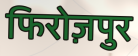
फिरोज़पुर